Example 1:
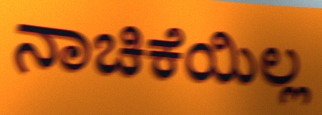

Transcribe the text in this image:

ನಾಚಿಕೆಯಿಲ್ಲ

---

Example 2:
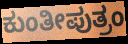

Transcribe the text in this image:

ಕುಂತೀಪುತ್ರಂ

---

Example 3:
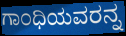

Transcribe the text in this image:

ಗಾಂಧಿಯವರನ್ನ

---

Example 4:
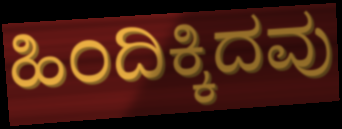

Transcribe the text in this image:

ಹಿಂದಿಕ್ಕಿದವು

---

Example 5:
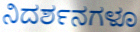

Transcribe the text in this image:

ನಿದರ್ಶನಗಳೂ